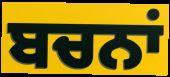
ਬਚਨਾਂ